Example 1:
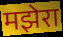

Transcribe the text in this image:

मझेरा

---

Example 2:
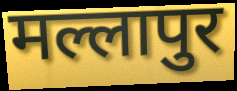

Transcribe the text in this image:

मल्लापुर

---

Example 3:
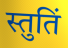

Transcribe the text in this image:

स्तुतिं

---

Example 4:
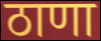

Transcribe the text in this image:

ठाणा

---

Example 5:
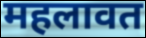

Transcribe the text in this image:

महलावत